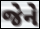
જેને